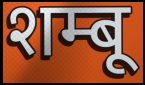
शम्बू